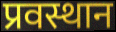
प्रवस्थान